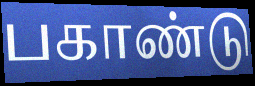
பகாண்டு